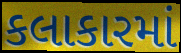
કલાકારમાં